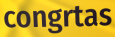
congrtas